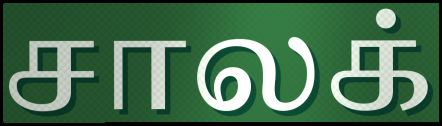
சாலக்